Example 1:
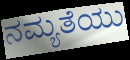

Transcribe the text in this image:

ನಮ್ಯತೆಯು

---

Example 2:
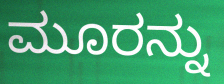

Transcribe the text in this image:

ಮೂರನ್ನು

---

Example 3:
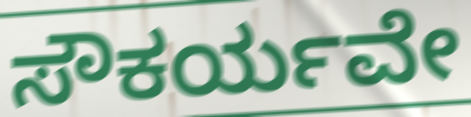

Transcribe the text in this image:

ಸೌಕರ್ಯವೇ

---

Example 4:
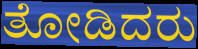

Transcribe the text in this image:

ತೋಡಿದರು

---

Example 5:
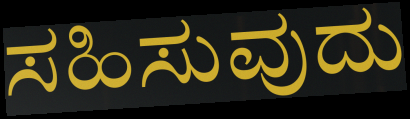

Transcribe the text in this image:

ಸಹಿಸುವುದು